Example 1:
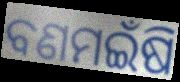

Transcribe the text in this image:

ବଣମଇଁଷି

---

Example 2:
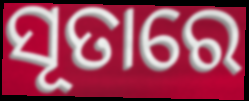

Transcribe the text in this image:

ସୂତାରେ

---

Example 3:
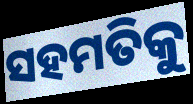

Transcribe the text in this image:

ସହମତିକୁ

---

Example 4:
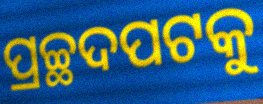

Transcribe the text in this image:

ପ୍ରଚ୍ଛଦପଟକୁ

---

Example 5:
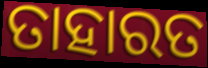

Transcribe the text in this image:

ତାହାରତ